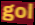
gol